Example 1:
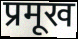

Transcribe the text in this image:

प्रमूख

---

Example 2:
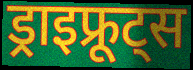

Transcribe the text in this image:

ड्राइफ्रूट्स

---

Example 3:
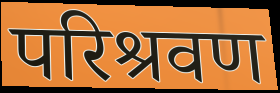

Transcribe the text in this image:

परिश्रवण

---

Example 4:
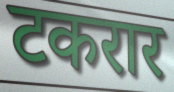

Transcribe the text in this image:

टकरार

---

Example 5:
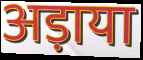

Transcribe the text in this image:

अड़ाया